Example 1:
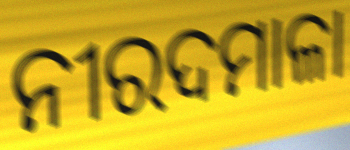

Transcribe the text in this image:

ନୀରଦମାଳା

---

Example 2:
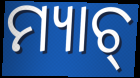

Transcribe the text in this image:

ମ୍ୟାଚ୍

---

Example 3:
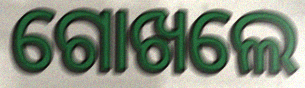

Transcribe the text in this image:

ଗୋଖଲେ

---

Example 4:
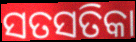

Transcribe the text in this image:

ସତସତିକା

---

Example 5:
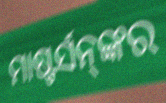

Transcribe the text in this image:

ମାଷ୍ଟର୍ସନ୍‌ଙ୍କର